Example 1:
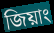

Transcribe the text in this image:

জিয়াং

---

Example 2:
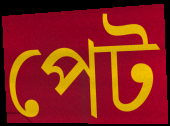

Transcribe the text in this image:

পেট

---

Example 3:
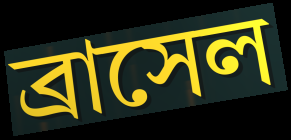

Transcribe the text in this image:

ব্রাসেল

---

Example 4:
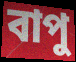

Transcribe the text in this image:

বাপু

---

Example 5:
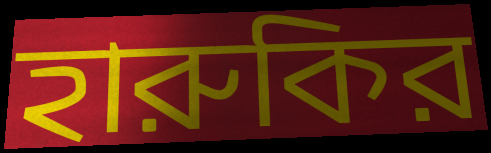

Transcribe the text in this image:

হারুকির